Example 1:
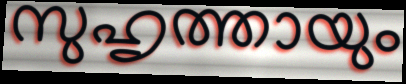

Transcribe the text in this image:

സുഹൃത്തായും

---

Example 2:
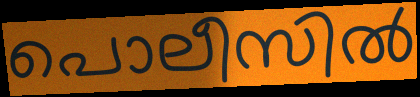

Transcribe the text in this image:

പൊലീസിൽ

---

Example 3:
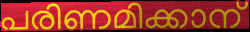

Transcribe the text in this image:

പരിണമിക്കാന്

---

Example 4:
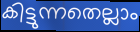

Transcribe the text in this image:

കിട്ടുന്നതെല്ലാം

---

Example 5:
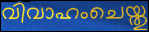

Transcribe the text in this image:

വിവാഹംചെയ്തു